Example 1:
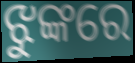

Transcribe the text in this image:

ଝୁଙ୍କରେ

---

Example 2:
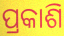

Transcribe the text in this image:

ପ୍ରକାଶି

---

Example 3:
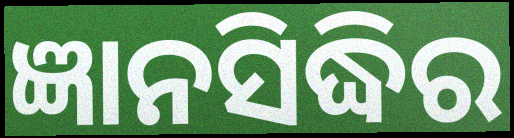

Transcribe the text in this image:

ଜ୍ଞାନସିଦ୍ଧିର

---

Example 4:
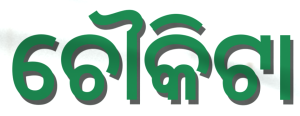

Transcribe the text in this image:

ଚୌକିଟା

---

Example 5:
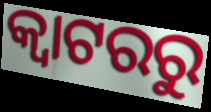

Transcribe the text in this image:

କ୍ୱାଟରରୁ